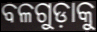
ବଳଗୁଡ଼ାକୁ